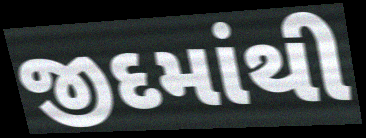
જીદમાંથી